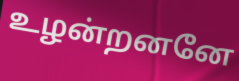
உழன்றனனே